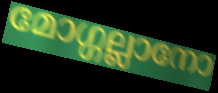
മോഗ്ഗല്ലാനോ